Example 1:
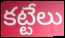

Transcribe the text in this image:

కట్టేలు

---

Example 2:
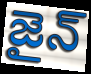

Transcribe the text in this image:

జైన్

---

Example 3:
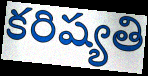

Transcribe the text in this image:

కరిష్యతి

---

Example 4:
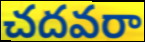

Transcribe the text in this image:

చదవరా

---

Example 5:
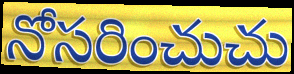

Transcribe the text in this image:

నోసరించుచు